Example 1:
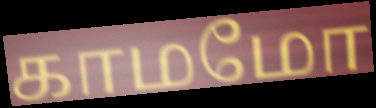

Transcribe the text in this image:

காமமோ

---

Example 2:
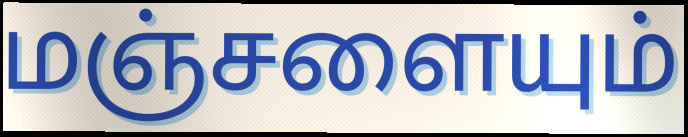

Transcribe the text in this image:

மஞ்சளையும்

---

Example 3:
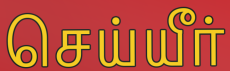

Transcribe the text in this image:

செய்யீர்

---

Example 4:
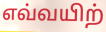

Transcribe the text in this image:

எவ்வயிற்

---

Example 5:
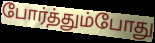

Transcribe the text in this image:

போர்த்தும்போது